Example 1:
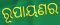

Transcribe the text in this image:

ରୂପାୟଣର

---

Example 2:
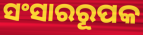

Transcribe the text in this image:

ସଂସାରରୂପକ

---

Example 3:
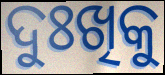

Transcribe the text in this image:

ଦୁଃଖିକୁ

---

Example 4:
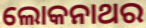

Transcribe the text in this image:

ଲୋକନାଥର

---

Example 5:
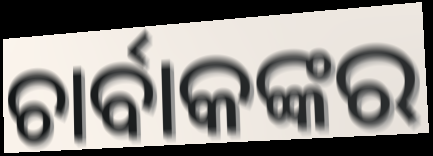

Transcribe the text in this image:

ଚାର୍ବାକଙ୍କର